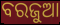
ବରଜୁଆ